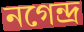
নগেন্দ্র